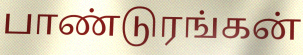
பாண்டுரங்கன்